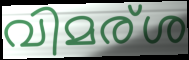
വിമര്ശ